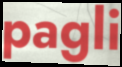
pagli